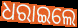
ଧରାଇଲେ